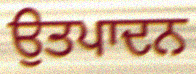
ਉਤਪਾਦਨ